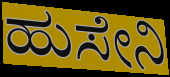
ಹುಸೇನಿ